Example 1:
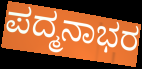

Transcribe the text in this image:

ಪದ್ಮನಾಭರ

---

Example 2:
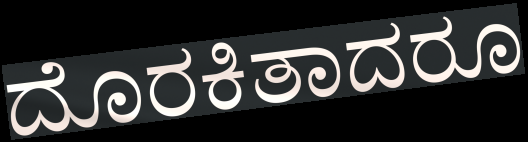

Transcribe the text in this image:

ದೊರಕಿತಾದರೂ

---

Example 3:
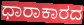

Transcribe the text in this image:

ಧಾರಾಕಾರದ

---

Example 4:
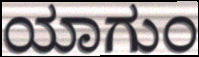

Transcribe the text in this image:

ಯಾಗುಂ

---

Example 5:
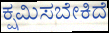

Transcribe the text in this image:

ಕ್ಷಮಿಸಬೇಕಿದೆ